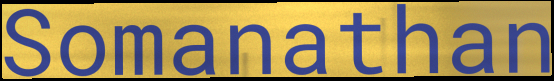
Somanathan